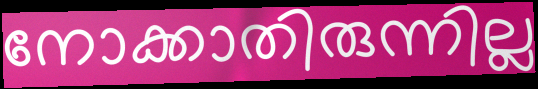
നോക്കാതിരുന്നില്ല